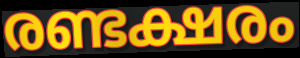
രണ്ടക്ഷരം